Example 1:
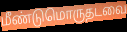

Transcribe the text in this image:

மீண்டுமொருதடவை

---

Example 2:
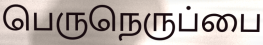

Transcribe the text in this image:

பெருநெருப்பை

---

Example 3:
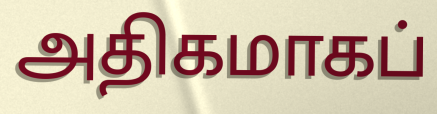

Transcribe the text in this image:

அதிகமாகப்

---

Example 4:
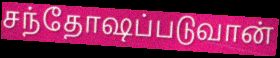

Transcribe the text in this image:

சந்தோஷப்படுவான்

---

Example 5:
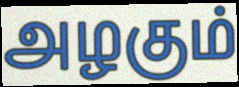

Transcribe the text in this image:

அழகும்